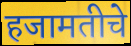
हजामतीचे